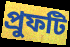
প্রুফটি